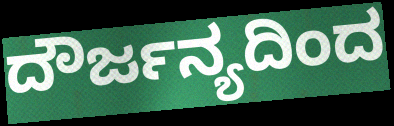
ದೌರ್ಜನ್ಯದಿಂದ